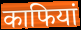
काफियां